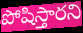
పోషిస్తారని